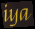
iya